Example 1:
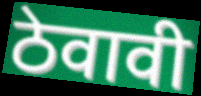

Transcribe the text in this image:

ठेवावी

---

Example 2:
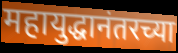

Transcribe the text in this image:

महायुद्धानंतरच्या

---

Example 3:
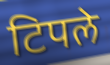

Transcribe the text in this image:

टिपले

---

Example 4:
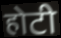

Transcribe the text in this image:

होटी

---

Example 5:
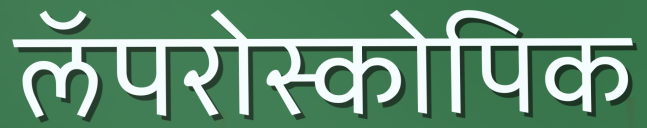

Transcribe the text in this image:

लॅपरोस्कोपिक